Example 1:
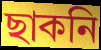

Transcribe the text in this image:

ছাকনি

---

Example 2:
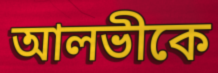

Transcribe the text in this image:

আলভীকে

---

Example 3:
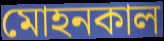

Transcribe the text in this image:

মোহনকাল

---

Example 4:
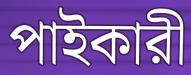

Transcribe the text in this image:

পাইকারী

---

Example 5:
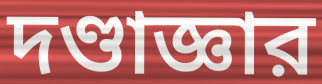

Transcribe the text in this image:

দণ্ডাজ্ঞার